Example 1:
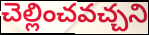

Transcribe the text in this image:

చెల్లించవచ్చని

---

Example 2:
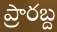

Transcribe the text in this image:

ప్రారబ్ద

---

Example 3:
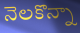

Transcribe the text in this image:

నెలకొన్నా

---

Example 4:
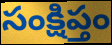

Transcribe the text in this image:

సంక్షిప్తం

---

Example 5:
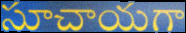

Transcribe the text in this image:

సూచాయగా